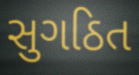
સુગઠિત